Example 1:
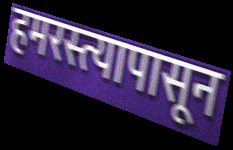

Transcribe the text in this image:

हमरस्त्यापासून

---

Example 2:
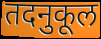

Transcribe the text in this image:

तदनुकूल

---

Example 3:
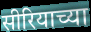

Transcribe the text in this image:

सीरियाच्या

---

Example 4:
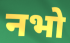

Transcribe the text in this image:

नभो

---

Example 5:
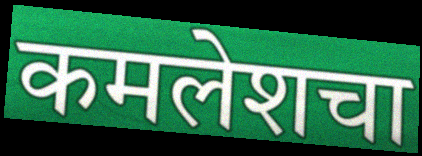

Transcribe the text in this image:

कमलेशचा